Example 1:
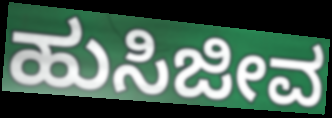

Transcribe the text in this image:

ಹುಸಿಜೀವ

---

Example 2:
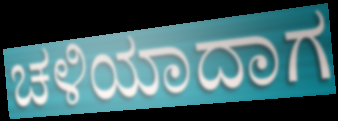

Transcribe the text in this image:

ಚಳಿಯಾದಾಗ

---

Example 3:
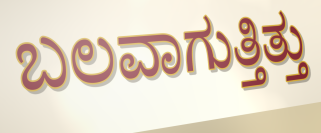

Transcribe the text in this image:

ಬಲವಾಗುತ್ತಿತ್ತು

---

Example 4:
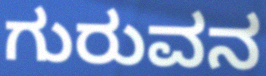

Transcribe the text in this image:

ಗುರುವನ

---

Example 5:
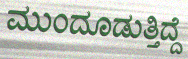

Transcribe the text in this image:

ಮುಂದೂಡುತ್ತಿದ್ದೆ